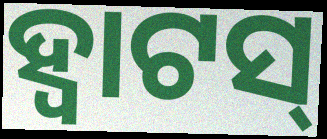
ହ୍ୱାଟସ୍